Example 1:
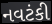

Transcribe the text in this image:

નવટંકી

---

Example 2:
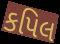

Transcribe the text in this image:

કપિલ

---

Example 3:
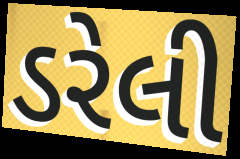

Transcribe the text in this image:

ડરેલી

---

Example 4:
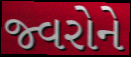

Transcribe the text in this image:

જ્વરોને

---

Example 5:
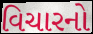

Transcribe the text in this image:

વિચારનો